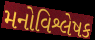
મનોવિશ્લેષક